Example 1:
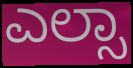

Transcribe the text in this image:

ಎಲ್ಸಾ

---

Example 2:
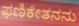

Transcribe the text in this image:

ಫಣಿಕೇತನನು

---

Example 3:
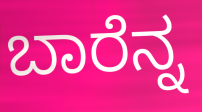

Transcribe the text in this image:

ಬಾರೆನ್ನ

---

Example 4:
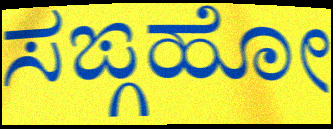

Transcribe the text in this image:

ಸಙ್ಗಹೋ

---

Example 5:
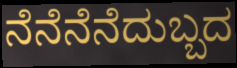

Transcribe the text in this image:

ನೆನೆನೆನೆದುಬ್ಬದ